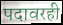
पदावरही